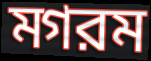
মগরম